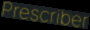
Prescriber